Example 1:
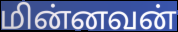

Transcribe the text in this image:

மின்னவன்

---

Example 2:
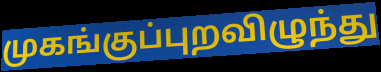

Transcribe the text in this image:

முகங்குப்புறவிழுந்து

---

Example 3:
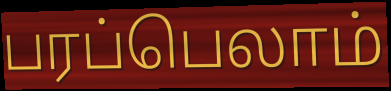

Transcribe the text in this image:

பரப்பெலாம்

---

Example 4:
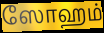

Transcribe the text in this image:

ஸோஹம்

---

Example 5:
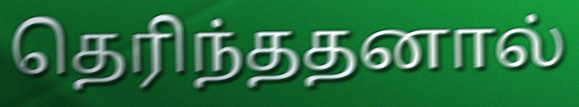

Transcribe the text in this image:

தெரிந்ததனால்